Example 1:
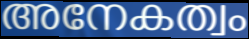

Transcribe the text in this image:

അനേകത്വം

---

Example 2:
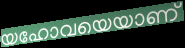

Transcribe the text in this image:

യഹോവയെയാണ്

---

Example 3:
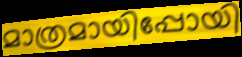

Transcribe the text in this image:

മാത്രമായിപ്പോയി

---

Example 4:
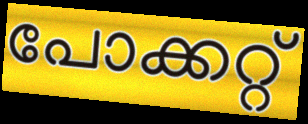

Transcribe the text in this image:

പോക്കറ്റ്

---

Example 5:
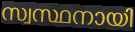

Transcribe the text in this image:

സ്വസ്ഥനായി